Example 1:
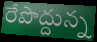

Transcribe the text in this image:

రేపొద్దున్న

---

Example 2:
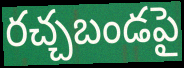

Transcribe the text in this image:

రచ్చబండపై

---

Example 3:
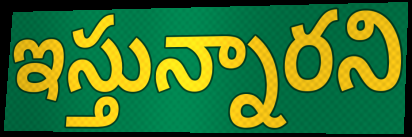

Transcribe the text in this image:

ఇస్తున్నారని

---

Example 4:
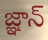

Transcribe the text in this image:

జ్ఞాన్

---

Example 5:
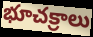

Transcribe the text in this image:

భూచక్రాలు